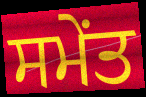
ਸਮੇਂਤ